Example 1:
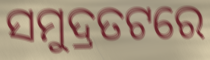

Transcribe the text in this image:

ସମୁଦ୍ରତଟରେ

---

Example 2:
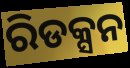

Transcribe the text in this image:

ରିଡକ୍ସନ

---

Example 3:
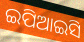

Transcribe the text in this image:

ଇପିଆଇସି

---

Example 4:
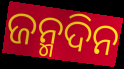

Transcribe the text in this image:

ଜନ୍ମଦିନ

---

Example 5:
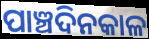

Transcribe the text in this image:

ପାଞ୍ଚଦିନକାଳ